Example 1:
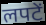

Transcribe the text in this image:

लपटें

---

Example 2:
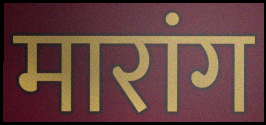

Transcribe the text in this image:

मारांग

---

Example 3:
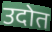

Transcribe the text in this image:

उदोत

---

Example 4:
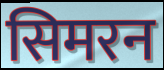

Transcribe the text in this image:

सिमरन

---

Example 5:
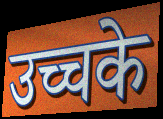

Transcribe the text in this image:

उच्चके